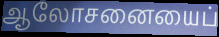
ஆலோசனையைப்